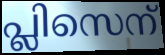
പ്ലിസെന്